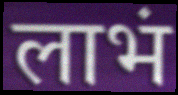
लाभं